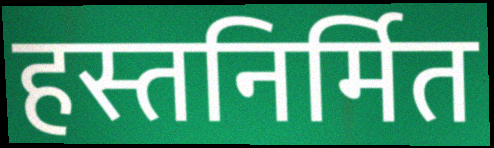
हस्तनिर्मित